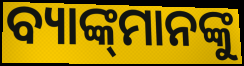
ବ୍ୟାଙ୍କ୍‌ମାନଙ୍କୁ